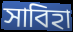
সাবিহা